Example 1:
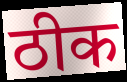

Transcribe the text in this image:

ठीक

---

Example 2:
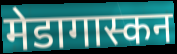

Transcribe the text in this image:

मेडागास्कन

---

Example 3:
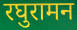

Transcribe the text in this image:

रघुरामन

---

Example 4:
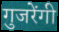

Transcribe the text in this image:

गुजरेंगी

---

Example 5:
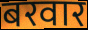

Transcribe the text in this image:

बरवार